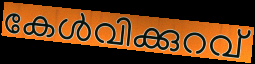
കേൾവിക്കുറവ്